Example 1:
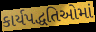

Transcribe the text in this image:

કાર્યપદ્ધતિઓમાં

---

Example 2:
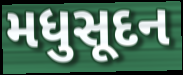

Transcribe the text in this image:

મધુસૂદન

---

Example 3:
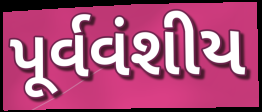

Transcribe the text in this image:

પૂર્વવંશીય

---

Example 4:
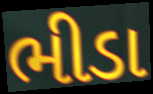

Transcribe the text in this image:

ભીડા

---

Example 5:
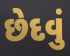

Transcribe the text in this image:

છેદવું